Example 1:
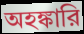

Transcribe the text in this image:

অহঙ্কারি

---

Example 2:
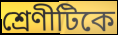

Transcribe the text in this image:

শ্রেণীটিকে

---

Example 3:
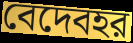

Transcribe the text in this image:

বেদেবহর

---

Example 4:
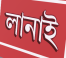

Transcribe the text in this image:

লানাই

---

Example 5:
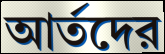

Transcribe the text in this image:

আর্তদের